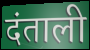
दंताली